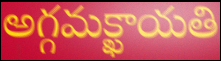
అగ్గమక్ఖాయతి